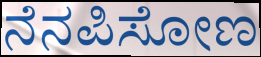
ನೆನಪಿಸೋಣ